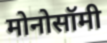
मोनोसॉमी